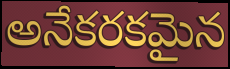
అనేకరకమైన